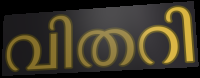
വിതറി